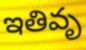
ఇతివృ